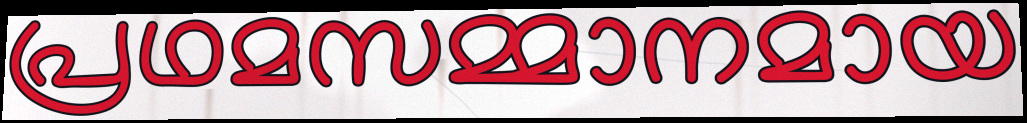
പ്രഥമസമ്മാനമായ